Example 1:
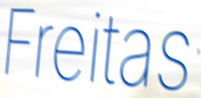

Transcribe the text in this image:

Freitas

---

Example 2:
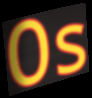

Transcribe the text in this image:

Os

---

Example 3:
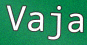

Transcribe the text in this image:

Vaja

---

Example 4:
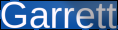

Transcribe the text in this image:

Garrett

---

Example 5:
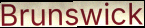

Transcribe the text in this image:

Brunswick